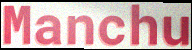
Manchu